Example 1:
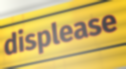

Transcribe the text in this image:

displease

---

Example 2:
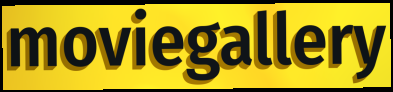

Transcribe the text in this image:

moviegallery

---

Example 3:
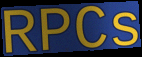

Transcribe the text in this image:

RPCs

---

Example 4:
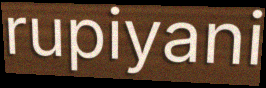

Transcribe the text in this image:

rupiyani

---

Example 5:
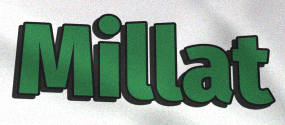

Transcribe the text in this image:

Millat